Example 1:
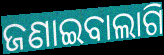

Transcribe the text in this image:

ଜଣାଇବାଲାଗି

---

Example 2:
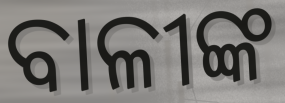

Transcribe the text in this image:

ବାଳୀଙ୍କ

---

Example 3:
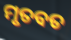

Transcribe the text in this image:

ମୃତବତ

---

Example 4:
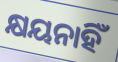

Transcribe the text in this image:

କ୍ଷୟନାହିଁ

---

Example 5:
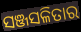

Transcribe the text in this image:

ସଞ୍ଜସଳିତାର